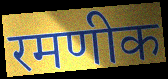
रमणीक